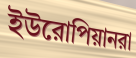
ইউরোপিয়ানরা